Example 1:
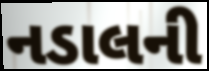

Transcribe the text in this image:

નડાલની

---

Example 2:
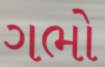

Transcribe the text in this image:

ગભો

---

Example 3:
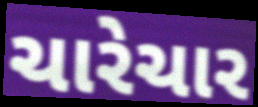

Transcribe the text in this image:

ચારેચાર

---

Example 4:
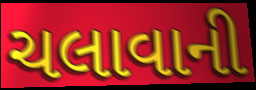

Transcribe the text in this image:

ચલાવાની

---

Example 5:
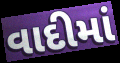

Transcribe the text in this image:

વાદીમાં